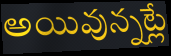
అయివున్నట్లే